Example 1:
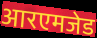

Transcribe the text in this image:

आरएमजेड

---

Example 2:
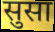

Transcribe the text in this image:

सुसा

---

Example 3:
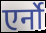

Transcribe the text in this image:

एर्नो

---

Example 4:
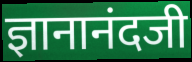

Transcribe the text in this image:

ज्ञानानंदजी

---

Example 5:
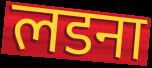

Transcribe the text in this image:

लडना